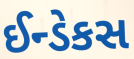
ઈન્ડેકસ